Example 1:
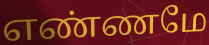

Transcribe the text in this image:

எண்ணமே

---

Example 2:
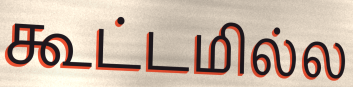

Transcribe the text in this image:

கூட்டமில்ல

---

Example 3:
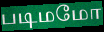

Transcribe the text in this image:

படிமமோ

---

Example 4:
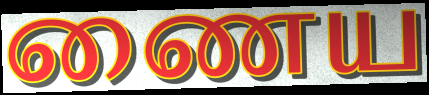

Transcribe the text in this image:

ணைய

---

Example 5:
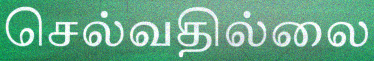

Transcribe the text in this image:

செல்வதில்லை